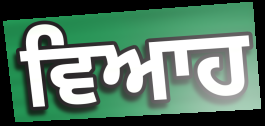
ਵਿਆਹ